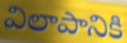
విలాపానికి